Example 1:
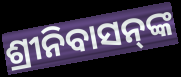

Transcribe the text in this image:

ଶ୍ରୀନିବାସନ୍‌ଙ୍କ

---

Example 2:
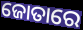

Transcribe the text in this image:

ଜୋତାରେ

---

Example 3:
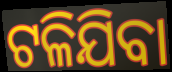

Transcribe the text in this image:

ଟଳିଯିବା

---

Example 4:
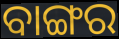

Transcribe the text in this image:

ବାଙ୍ଗର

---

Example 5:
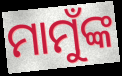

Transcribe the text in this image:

ମାମୁଁଙ୍କ